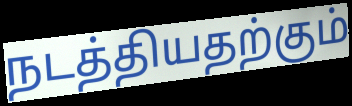
நடத்தியதற்கும்